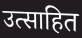
उत्साहित